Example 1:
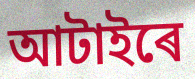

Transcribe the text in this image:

আটাইৰে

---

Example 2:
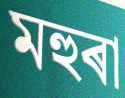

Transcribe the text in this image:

মহুৰা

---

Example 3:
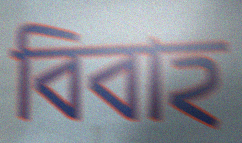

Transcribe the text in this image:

বিবাহ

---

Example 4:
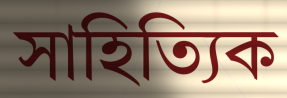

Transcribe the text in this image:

সাহিত্যিক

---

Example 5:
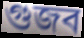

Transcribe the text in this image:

গুজব